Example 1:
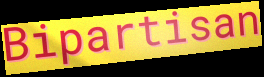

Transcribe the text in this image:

Bipartisan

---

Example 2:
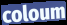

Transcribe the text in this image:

coloum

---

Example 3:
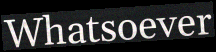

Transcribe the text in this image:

Whatsoever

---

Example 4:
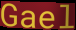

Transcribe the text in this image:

Gael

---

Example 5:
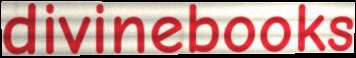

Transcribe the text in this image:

divinebooks